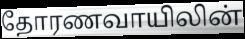
தோரணவாயிலின்